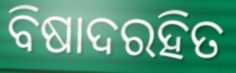
ବିଷାଦରହିତ